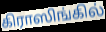
கிராஸிங்கில்